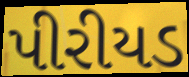
પીરીયડ